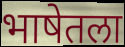
भाषेतला